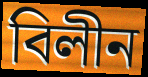
বিলীন